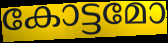
കോട്ടമോ